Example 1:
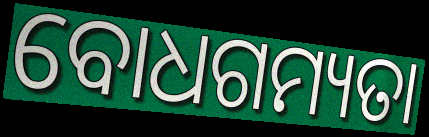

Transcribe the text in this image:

ବୋଧଗମ୍ୟତା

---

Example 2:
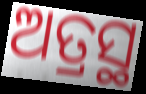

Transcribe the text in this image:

ଅତ୍ରସ୍ଥ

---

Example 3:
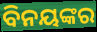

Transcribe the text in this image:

ବିନୟଙ୍କର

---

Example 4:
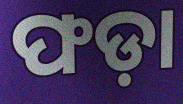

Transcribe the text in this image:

ଫଡ଼ା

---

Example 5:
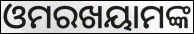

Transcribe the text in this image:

ଓମରଖୟାମଙ୍କ